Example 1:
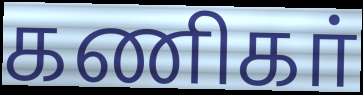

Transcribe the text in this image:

கணிகர்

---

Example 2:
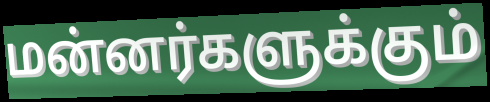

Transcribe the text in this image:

மன்னர்களுக்கும்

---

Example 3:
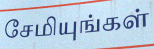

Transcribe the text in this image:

சேமியுங்கள்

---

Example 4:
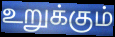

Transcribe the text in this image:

உறுக்கும்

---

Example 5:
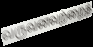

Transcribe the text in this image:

வருவனவற்றைத்